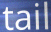
tail